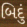
બિદું